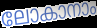
ലോകാനാം